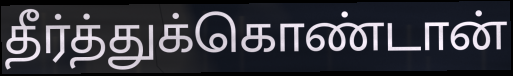
தீர்த்துக்கொண்டான்